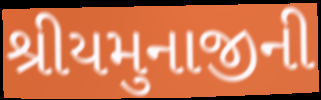
શ્રીયમુનાજીની